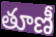
తూణీ